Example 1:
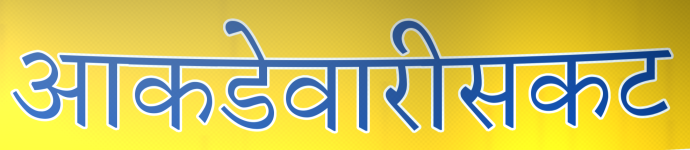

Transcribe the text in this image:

आकडेवारीसकट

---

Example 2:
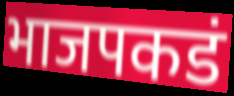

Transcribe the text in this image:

भाजपकडं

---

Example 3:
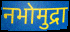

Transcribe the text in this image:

नभोमुद्रा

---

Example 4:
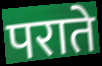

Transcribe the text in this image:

पराते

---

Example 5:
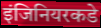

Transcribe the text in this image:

इंजिनियरकडे